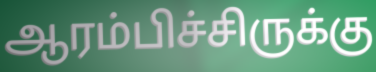
ஆரம்பிச்சிருக்கு